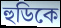
হুডিকে